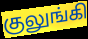
குலுங்கி